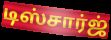
டிஸ்சார்ஜ்